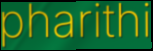
pharithi